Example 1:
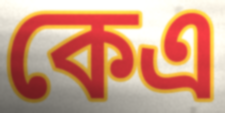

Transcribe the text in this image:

কেএ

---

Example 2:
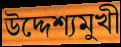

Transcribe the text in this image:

উদ্দেশ্যমুখী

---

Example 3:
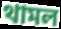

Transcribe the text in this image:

থামল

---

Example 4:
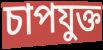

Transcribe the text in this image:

চাপযুক্ত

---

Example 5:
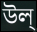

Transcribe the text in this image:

উল্